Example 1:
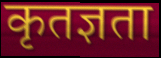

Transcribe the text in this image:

कृतज्ञता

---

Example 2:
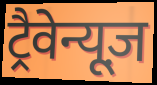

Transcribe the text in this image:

ट्रैवेन्यूज़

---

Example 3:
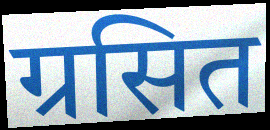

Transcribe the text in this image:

ग्रसित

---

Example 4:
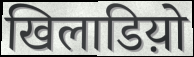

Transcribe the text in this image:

खिलाडिय़ो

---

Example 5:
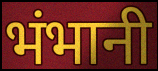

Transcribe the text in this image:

भंभानी